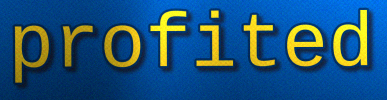
profited